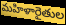
మహిళారైతుల